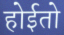
होईतो